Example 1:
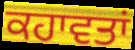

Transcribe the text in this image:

ਕਹਾਵਤਾਂ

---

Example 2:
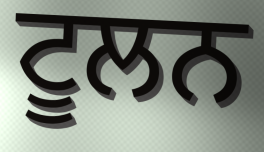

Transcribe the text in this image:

ਟੂਲਨ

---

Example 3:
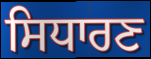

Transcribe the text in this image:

ਸਿਧਾਰਣ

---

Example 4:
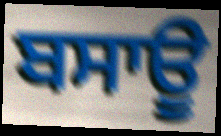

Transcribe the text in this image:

ਬਸਾਊ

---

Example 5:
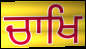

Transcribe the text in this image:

ਚਾਖਿ